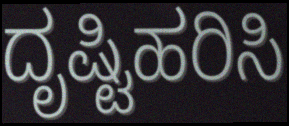
ದೃಷ್ಟಿಹರಿಸಿ